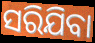
ସରିଯିବା